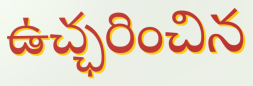
ఉచ్ఛరించిన